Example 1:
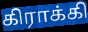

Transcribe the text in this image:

கிராக்கி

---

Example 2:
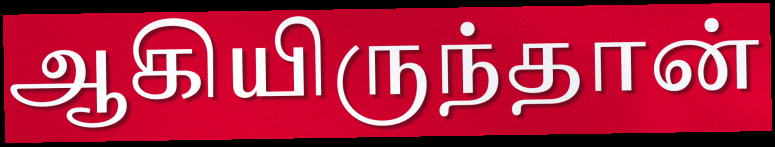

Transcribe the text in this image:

ஆகியிருந்தான்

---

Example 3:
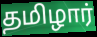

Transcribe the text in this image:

தமிழார்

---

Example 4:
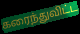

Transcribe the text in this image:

கரைந்துவிட்ட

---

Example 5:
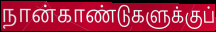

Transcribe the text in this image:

நான்காண்டுகளுக்குப்